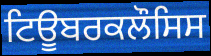
ਟਿਊਬਰਕਲੌਸਿਸ